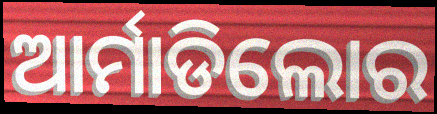
ଆର୍ମାଡିଲୋର